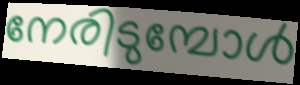
നേരിടുമ്പോൾ